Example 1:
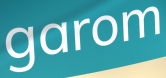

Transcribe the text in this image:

garom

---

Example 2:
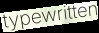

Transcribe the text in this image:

typewritten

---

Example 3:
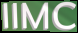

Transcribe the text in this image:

IIMC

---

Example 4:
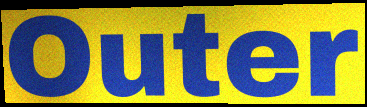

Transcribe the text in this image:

Outer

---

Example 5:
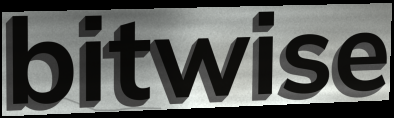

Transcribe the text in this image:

bitwise